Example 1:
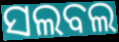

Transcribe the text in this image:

ସଲବଲ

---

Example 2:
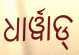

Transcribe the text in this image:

ଧାର୍ୱାଡ୍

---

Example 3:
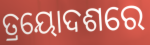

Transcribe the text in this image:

ତ୍ରୟୋଦଶରେ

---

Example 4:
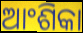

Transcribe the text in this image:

ଆଂଶିକା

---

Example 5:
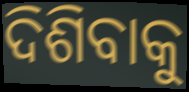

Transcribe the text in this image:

ଦିଶିବାକୁ